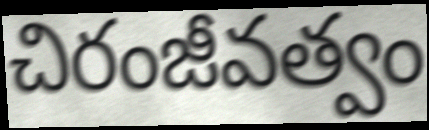
చిరంజీవత్వం